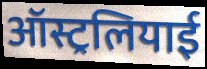
ऑस्ट्रलियाई